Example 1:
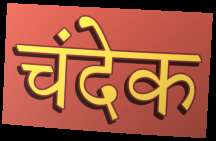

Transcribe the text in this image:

चंदेक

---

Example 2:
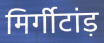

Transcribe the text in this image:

मिर्गीटांड़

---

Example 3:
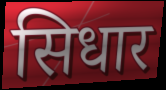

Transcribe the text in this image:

सिधार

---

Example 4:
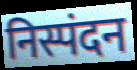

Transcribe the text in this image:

निस्पंदन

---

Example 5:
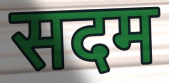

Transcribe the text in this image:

सदम